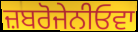
ਜ਼ਬਰੋਜੇਨੀਓਵਾ